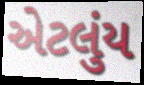
એટલુંય